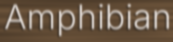
Amphibian